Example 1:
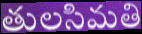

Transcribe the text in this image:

తులసిమతి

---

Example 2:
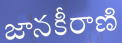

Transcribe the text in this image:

జానకీరాణి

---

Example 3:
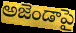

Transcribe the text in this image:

అజెండాపై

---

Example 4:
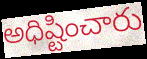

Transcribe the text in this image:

అధిష్టించారు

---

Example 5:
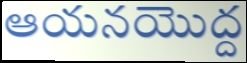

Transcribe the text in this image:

ఆయనయొద్ద